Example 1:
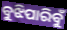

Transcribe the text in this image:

ବୁଝିପାରିବୁଁ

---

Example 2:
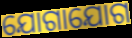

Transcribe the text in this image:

ଯୋଗାଯୋଗ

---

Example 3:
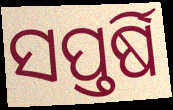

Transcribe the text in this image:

ସପ୍ତର୍ଷି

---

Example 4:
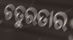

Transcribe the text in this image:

ଚତୁରତାର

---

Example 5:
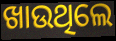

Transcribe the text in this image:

ଖାଉଥିଲେ